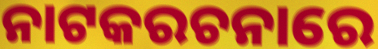
ନାଟକରଚନାରେ